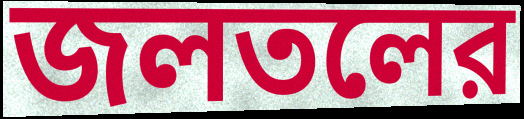
জলতলের